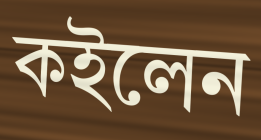
কইলেন